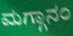
ಮಗ್ಗಾನಂ